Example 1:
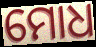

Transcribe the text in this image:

ମୋଧ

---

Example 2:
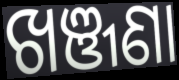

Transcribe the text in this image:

ଖଞ୍ଜଣା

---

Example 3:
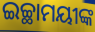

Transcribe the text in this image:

ଇଚ୍ଛାମୟୀଙ୍କ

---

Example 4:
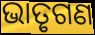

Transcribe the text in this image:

ଭାତୃଗଣ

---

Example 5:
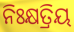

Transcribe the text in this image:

ନିଃକ୍ଷତ୍ରିୟ